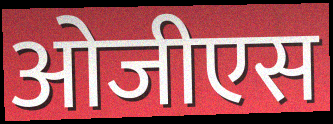
ओजीएस